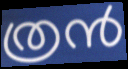
ത്രൻ